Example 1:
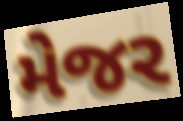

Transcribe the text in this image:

મેજર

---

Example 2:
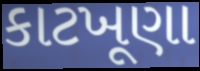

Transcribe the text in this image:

કાટખૂણા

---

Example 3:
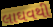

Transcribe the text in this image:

લાઘવથી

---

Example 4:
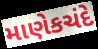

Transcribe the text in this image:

માણેકચંદે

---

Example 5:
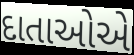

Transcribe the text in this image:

દાતાઓએ